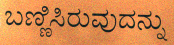
ಬಣ್ಣಿಸಿರುವುದನ್ನು